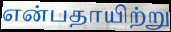
என்பதாயிற்று